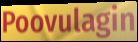
Poovulagin